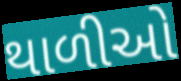
થાળીઓ